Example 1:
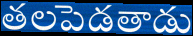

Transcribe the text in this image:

తలపెడతాడు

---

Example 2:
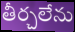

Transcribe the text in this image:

తీర్చలేను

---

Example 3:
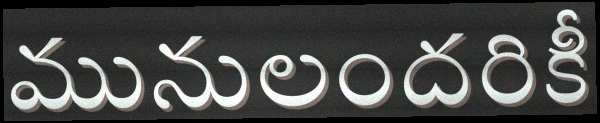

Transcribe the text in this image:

మునులందరికీ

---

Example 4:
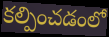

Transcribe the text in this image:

కల్పించడంలో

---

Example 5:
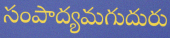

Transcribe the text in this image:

సంపాద్యమగుదురు